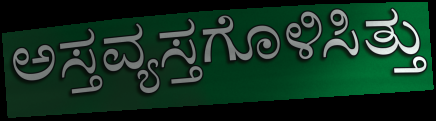
ಅಸ್ತವ್ಯಸ್ತಗೊಳಿಸಿತ್ತು